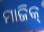
ମାଜିକ୍